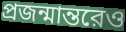
প্রজন্মান্তরেও